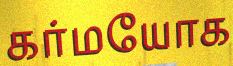
கர்மயோக